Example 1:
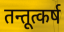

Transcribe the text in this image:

तन्तूत्कर्ष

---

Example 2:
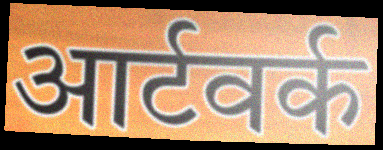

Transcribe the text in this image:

आर्टवर्क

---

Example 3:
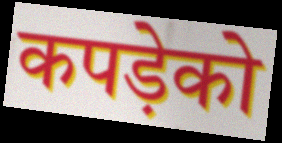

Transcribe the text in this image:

कपड़ेको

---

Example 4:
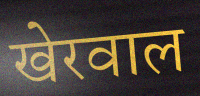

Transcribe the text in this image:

खेरवाल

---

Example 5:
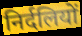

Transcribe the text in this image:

निर्दलियों